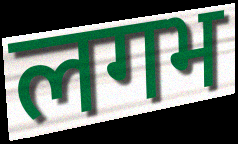
लगभ